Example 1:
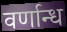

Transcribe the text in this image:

वर्णान्ध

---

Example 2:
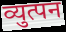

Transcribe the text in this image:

व्युत्पन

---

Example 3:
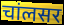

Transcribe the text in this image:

चांलसर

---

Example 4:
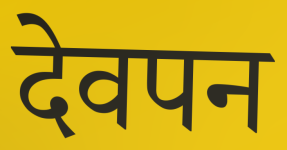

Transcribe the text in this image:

देवपन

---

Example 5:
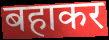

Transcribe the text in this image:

बहाकर